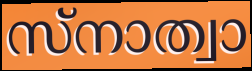
സ്നാത്വാ